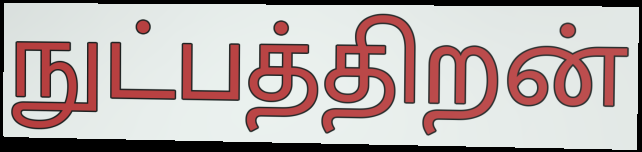
நுட்பத்திறன்